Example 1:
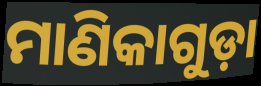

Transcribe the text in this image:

ମାଣିକାଗୁଡ଼ା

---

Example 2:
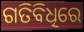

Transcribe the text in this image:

ଗତିବିଧିରେ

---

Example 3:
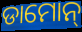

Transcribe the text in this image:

ଡାମୋନ୍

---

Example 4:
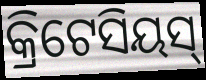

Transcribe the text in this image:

କ୍ରିଟେସିୟସ୍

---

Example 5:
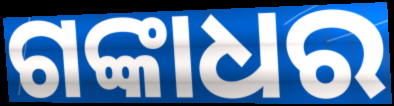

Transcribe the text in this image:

ଗଙ୍କାଧର